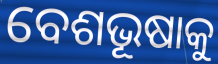
ବେଶଭୂଷାକୁ